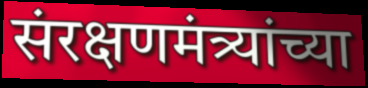
संरक्षणमंत्र्यांच्या